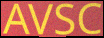
AVSC